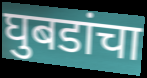
घुबडांचा